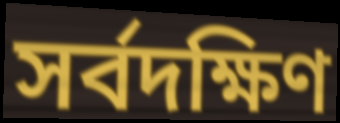
সর্বদক্ষিণ